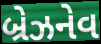
બ્રેઝનેવ